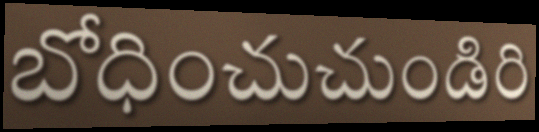
బోధించుచుండిరి